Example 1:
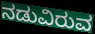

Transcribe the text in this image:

ನಡುವಿರುವ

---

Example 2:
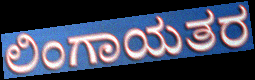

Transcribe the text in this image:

ಲಿಂಗಾಯತರ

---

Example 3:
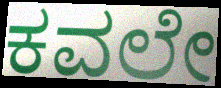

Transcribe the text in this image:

ಕವಲೇ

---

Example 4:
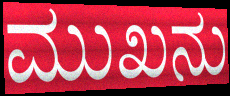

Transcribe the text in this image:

ಮುಖನು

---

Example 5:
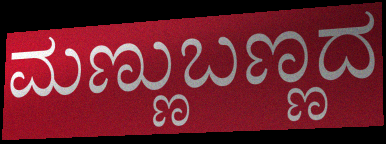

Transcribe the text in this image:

ಮಣ್ಣುಬಣ್ಣದ